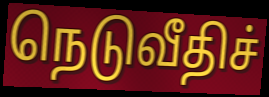
நெடுவீதிச்